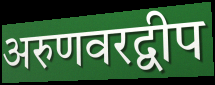
अरुणवरद्वीप